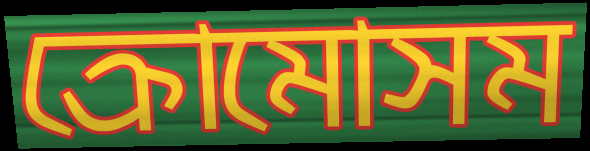
ক্রোমোসম